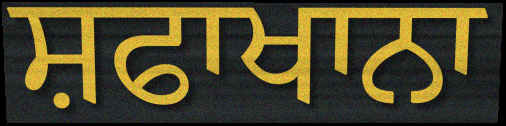
ਸ਼ਫਾਖਾਨਾ